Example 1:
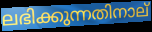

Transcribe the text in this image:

ലഭിക്കുന്നതിനാല്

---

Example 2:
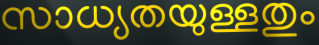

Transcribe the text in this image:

സാധ്യതയുള്ളതും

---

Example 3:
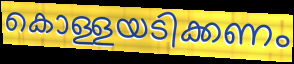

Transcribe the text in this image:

കൊള്ളയടിക്കണം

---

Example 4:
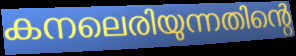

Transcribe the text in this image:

കനലെരിയുന്നതിന്റെ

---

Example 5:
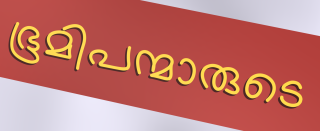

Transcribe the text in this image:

ഭൂമിപന്മാരുടെ